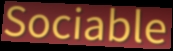
Sociable